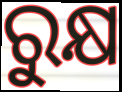
ରୁକ୍ଷ